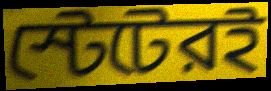
স্টেটেরই